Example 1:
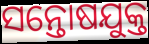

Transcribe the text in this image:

ସନ୍ତୋଷଯୁକ୍ତ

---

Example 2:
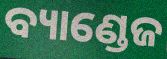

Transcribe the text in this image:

ବ୍ୟାଣ୍ଡେଜ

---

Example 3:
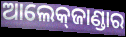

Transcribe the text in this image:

ଆଲେକ୍‌ଜାଣ୍ଡାର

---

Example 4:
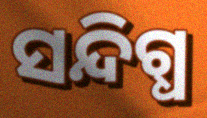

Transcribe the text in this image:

ସନ୍ଦିଗ୍ଧ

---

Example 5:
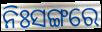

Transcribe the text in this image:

ନିଃସଙ୍ଗରେ